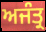
ਅਜੰਤ੍ਰ